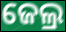
ଜେଲ୍ର